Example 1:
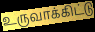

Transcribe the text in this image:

உருவாக்கிட்டு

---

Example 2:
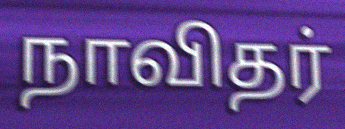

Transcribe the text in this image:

நாவிதர்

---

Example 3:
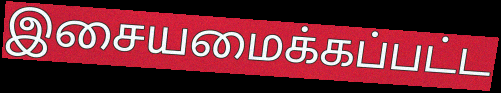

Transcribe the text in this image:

இசையமைக்கப்பட்ட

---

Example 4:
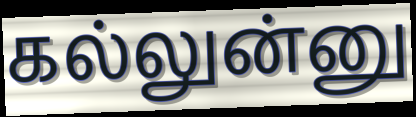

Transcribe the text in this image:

கல்லுன்னு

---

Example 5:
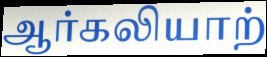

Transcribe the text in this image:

ஆர்கலியாற்